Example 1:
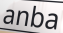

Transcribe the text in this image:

anba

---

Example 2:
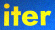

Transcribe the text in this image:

iter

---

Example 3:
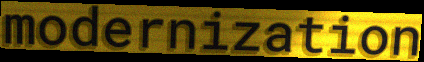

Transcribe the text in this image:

modernization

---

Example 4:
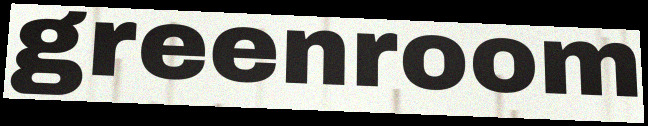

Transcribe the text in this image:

greenroom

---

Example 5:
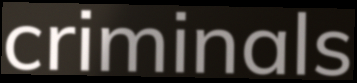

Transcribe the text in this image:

criminals